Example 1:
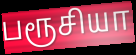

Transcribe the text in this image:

பரூசியா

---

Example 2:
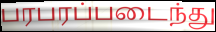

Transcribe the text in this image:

பரபரப்படைந்து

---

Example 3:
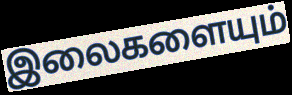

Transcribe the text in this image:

இலைகளையும்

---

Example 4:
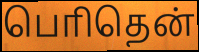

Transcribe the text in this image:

பெரிதென்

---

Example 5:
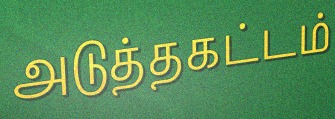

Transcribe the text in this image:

அடுத்தகட்டம்